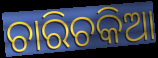
ଚାରିଚକିଆ